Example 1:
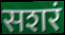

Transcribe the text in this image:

सशरं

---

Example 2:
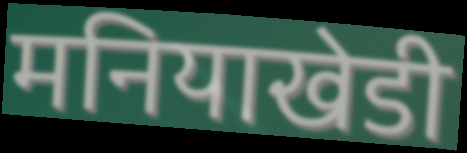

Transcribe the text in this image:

मनियाखेडी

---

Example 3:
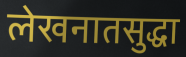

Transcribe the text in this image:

लेखनातसुद्धा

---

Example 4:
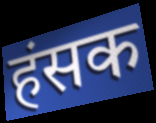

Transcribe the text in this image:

हंसक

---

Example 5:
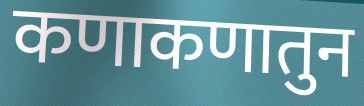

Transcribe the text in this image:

कणाकणातुन